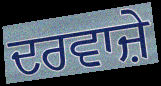
ਦਰਵਾਜ਼ੇ